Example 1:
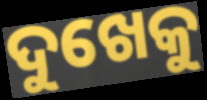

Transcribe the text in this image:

ଦୁଖେକୁ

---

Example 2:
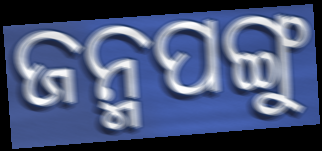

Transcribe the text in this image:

ଜନ୍ମପଙ୍ଗୁ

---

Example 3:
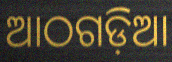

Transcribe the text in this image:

ଆଠଗଡ଼ିଆ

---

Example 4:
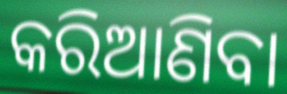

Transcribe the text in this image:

କରିଆଣିବା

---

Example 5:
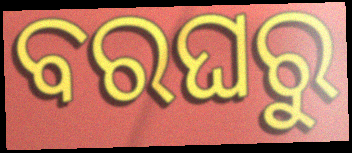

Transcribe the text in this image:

ବରଘରୁ